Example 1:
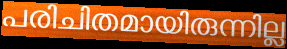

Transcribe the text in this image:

പരിചിതമായിരുന്നില്ല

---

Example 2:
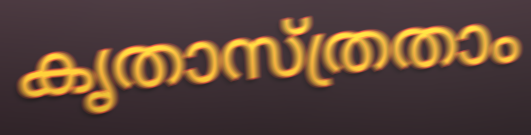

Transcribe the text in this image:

കൃതാസ്ത്രതാം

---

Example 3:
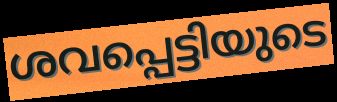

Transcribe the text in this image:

ശവപ്പെട്ടിയുടെ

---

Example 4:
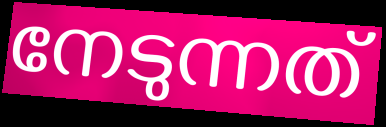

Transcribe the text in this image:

നേടുന്നത്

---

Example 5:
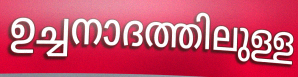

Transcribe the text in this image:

ഉച്ചനാദത്തിലുള്ള